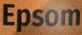
Epsom